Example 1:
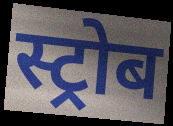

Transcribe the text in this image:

स्ट्रोब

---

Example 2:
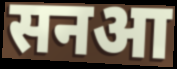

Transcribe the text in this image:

सनआ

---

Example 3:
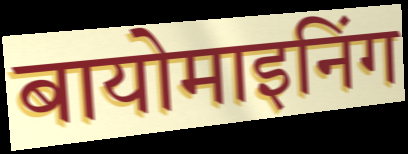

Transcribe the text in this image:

बायोमाइनिंग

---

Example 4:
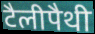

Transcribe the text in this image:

टैलीपैथी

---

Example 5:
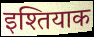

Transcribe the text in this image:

इश्तियाक